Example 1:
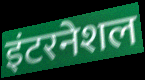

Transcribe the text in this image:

इंटरनेशल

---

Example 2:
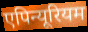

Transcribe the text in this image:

एपिन्यूरियम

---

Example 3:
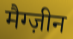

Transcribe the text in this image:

मैग्ज़ीन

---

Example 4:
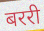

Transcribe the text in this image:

बररी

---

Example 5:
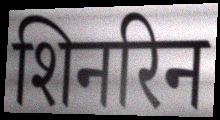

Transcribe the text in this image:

शिनरिन